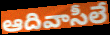
ఆదివాసీలే